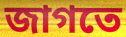
জাগতে